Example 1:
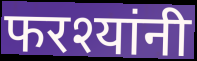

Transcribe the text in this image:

फरश्यांनी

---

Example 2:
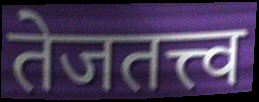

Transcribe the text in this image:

तेजतत्त्व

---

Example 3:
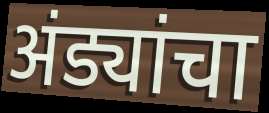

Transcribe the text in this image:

अंड्यांचा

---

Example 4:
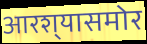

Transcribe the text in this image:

आरश्यासमोर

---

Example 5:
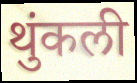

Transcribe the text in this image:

थुंकली